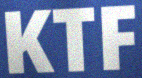
KTF